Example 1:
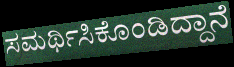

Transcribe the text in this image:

ಸಮರ್ಥಿಸಿಕೊಂಡಿದ್ದಾನೆ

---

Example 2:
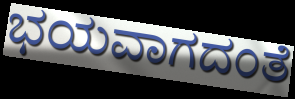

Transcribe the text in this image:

ಭಯವಾಗದಂತೆ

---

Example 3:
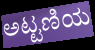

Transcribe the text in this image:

ಅಟ್ಟಣಿಯ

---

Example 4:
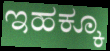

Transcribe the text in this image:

ಇಹಕ್ಕೂ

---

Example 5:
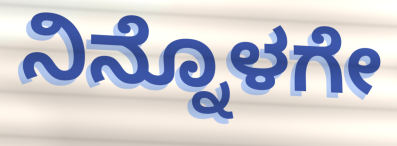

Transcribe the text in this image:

ನಿನ್ನೊಳಗೇ